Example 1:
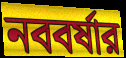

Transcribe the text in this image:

নববর্ষার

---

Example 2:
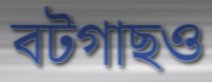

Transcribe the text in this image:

বটগাছও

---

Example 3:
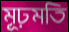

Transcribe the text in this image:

মূঢ়মতি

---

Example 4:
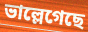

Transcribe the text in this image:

ভাল্লেগেছে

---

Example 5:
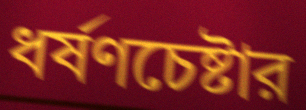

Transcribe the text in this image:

ধর্ষণচেষ্টার